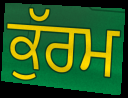
ਕੁੱਰਮ